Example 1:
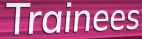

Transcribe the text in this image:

Trainees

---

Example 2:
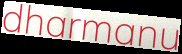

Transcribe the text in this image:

dharmanu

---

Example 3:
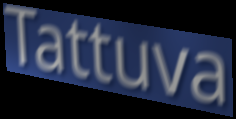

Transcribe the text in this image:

Tattuva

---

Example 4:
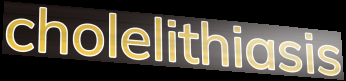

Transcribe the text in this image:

cholelithiasis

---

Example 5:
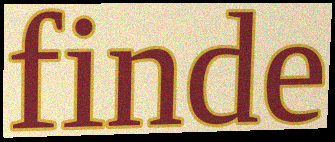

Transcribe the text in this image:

finde